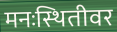
मनःस्थितीवर